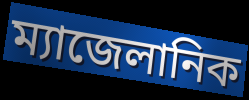
ম্যাজেলানিক